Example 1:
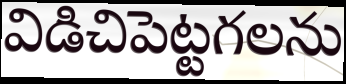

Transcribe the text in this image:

విడిచిపెట్టగలను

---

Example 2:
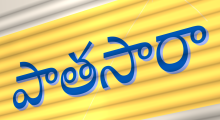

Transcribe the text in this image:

పాతసారా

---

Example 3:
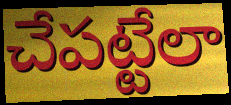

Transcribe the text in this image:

చేపట్టేలా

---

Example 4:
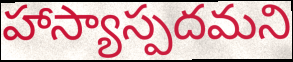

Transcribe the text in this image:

హాస్యాస్పదమని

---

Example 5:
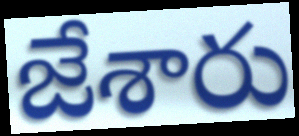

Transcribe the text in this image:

జేశారు